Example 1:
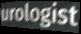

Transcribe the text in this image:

urologist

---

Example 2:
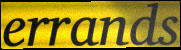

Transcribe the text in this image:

errands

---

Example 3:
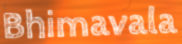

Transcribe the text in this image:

Bhimavala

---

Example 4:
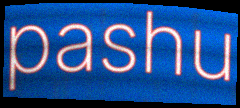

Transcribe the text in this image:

pashu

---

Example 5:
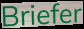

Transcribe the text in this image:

Briefer